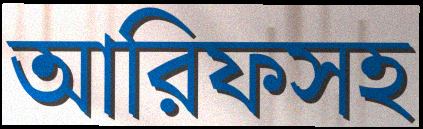
আরিফসহ